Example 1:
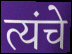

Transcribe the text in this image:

त्यंचे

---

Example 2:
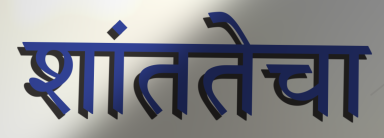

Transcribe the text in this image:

शांततेचा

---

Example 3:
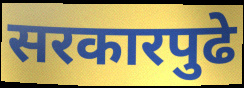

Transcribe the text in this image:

सरकारपुढे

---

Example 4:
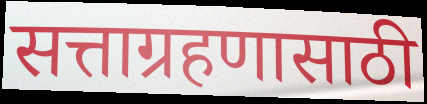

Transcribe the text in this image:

सत्ताग्रहणासाठी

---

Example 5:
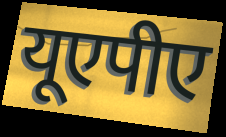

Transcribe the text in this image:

यूएपीए